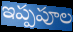
ఇప్పపూల